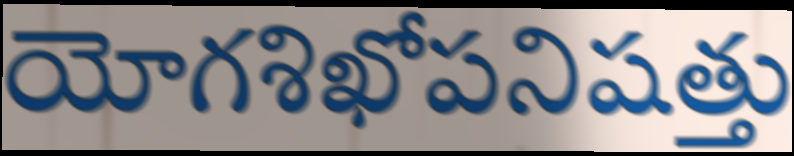
యోగశిఖోపనిషత్తు